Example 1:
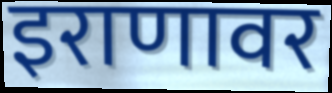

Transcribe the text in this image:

इराणावर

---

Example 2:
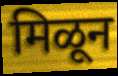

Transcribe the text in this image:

मिळून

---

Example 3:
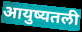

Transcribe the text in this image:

आयुष्यतली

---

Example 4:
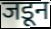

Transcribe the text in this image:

जडून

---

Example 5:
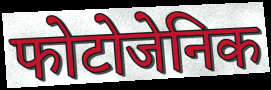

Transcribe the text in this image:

फोटोजेनिक